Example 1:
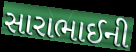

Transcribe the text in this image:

સારાભાઈની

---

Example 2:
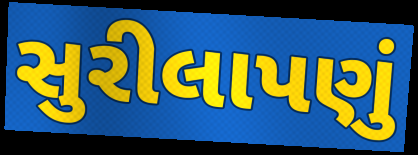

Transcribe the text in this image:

સુરીલાપણું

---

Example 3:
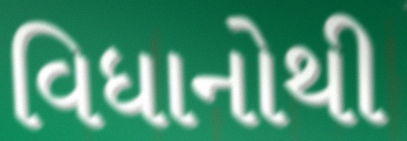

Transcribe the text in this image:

વિધાનોથી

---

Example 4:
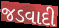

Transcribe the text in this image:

જડવાદી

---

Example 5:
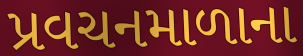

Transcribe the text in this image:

પ્રવચનમાળાના